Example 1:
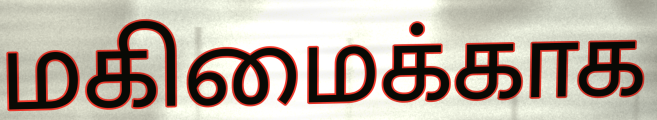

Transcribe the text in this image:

மகிமைக்காக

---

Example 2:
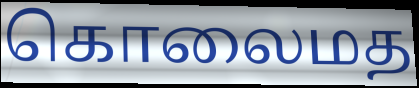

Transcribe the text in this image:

கொலைமத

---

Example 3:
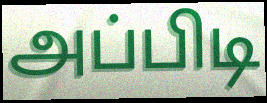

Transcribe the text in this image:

அப்பிடி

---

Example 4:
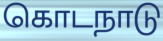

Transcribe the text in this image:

கொடநாடு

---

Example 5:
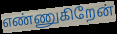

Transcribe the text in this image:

எண்ணுகிறேன்